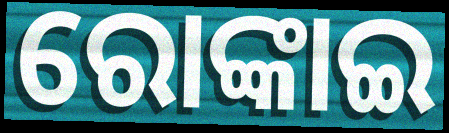
ରୋଙ୍କାଇ